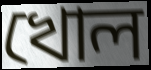
খোল